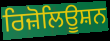
ਰਿਜ਼ੋਲਿਊਸ਼ਨ